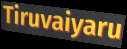
Tiruvaiyaru